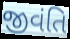
જીવંતિ